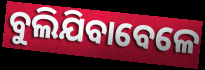
ବୁଲିଯିବାବେଳେ